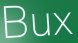
Bux